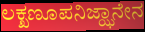
ಲಕ್ಖಣೂಪನಿಜ್ಝಾನೇನ